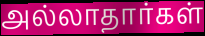
அல்லாதார்கள்